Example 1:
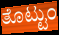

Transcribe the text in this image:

ತೊಟ್ಟುಂ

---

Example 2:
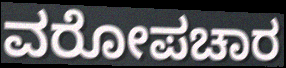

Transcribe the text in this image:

ವರೋಪಚಾರ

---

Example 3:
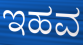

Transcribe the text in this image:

ಇಹವ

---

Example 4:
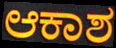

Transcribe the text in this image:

ಆಕಾಶ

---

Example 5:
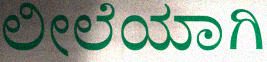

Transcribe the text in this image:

ಲೀಲೆಯಾಗಿ